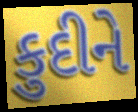
કુદીને